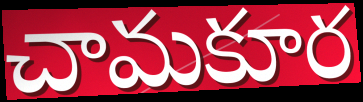
చామకూర